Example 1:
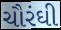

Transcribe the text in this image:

ચૌરંઘી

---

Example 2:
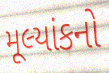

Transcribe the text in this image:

મૂલ્યાંકનો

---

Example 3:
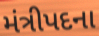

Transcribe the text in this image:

મંત્રીપદના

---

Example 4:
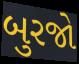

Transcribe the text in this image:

બુરજો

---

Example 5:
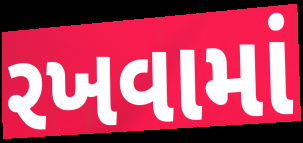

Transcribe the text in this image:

રખવામાં